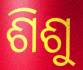
ଶିଶୁ